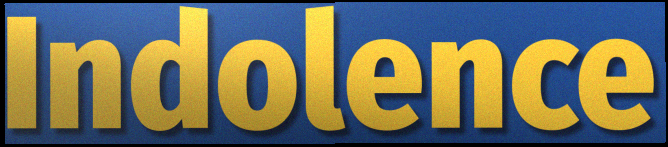
Indolence